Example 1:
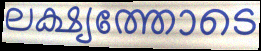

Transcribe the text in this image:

ലക്ഷ്യത്തോടെ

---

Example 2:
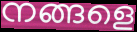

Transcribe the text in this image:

നങ്ങളെ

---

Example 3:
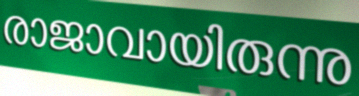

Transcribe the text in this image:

രാജാവായിരുന്നു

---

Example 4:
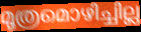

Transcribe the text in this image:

മൂത്രമൊഴിച്ചില്ല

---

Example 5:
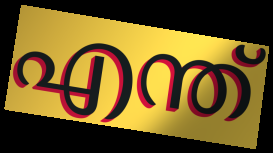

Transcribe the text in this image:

എന്ത്